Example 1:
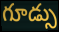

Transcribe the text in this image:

గూడ్సు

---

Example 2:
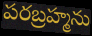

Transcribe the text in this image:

పరబ్రహ్మను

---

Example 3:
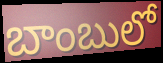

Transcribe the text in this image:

బాంబులో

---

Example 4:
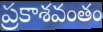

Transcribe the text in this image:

ప్రకాశవంతం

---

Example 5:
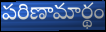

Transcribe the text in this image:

పరిణామార్థం